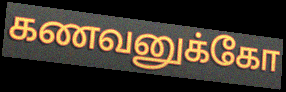
கணவனுக்கோ